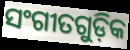
ସଂଗୀତଗୁଡ଼ିକ